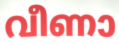
വീണാ